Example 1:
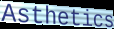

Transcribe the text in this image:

Asthetics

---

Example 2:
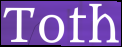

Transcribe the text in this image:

Toth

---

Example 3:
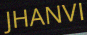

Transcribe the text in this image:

JHANVI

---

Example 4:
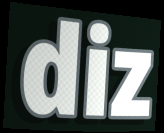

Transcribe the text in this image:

diz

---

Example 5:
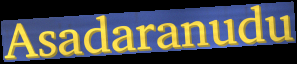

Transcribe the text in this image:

Asadaranudu